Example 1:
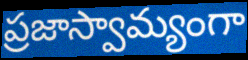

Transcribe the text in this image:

ప్రజాస్వామ్యంగా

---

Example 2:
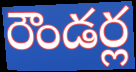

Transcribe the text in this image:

రౌండర్ల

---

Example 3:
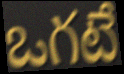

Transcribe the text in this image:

ఒగటే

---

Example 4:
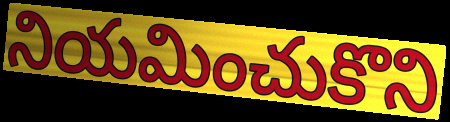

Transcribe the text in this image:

నియమించుకొని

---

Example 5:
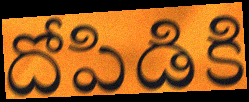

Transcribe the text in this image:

దోపిడికి